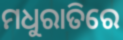
ମଧୁରାତିରେ